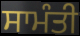
ਸਾਮੰਤੀ